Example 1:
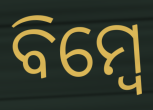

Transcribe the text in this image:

ବିମ୍ବେ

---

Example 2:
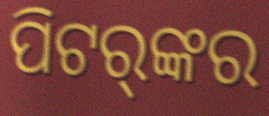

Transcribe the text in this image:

ପିଟର୍‌ଙ୍କର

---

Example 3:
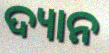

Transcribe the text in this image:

ଦ୍ୟାନ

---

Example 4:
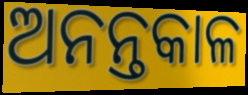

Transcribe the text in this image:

ଅନନ୍ତକାଳ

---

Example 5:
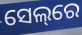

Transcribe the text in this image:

ସେଲ୍‌ରେ